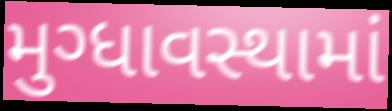
મુગ્ધાવસ્થામાં